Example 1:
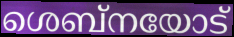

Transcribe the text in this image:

ശെബ്നയോട്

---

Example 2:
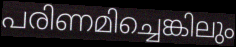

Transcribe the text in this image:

പരിണമിച്ചെങ്കിലും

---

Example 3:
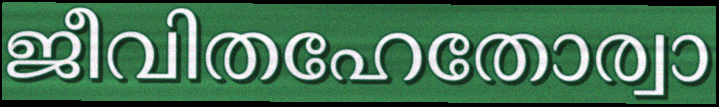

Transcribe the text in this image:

ജീവിതഹേതോര്വാ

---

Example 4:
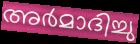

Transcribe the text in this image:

അർമാദിച്ചു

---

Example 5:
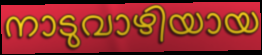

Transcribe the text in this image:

നാടുവാഴിയായ